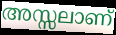
അസ്സലാണ്